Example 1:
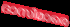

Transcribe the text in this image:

ദാസിമാരെ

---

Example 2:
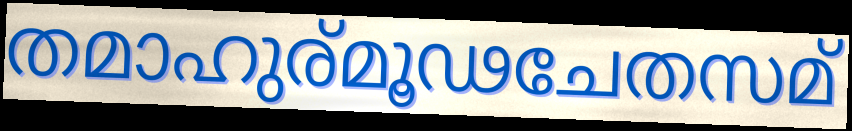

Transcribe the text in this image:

തമാഹുര്മൂഢചേതസമ്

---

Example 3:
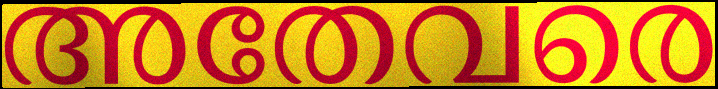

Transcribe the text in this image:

അതേവരെ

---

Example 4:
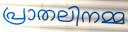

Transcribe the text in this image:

പ്രാതലിനമ്മ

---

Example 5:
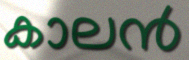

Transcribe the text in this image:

കാലൻ